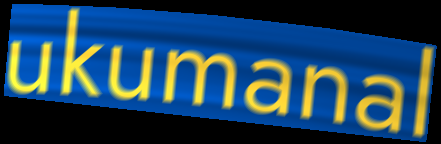
ukumanal